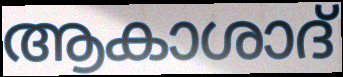
ആകാശാദ്